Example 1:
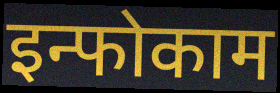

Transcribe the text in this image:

इन्फोकाम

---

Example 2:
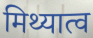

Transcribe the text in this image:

मिथ्यात्व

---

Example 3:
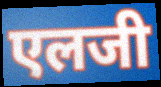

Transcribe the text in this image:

एलजी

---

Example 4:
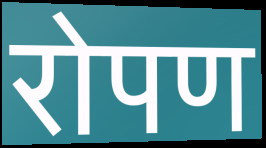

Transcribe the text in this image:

रोपण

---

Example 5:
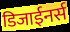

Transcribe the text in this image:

डिजाईनर्स